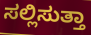
ಸಲ್ಲಿಸುತ್ತಾ